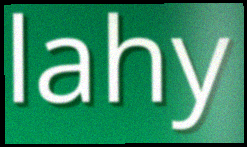
lahy